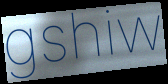
gshiw